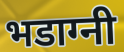
भडाग्नी